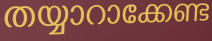
തയ്യാറാക്കേണ്ട